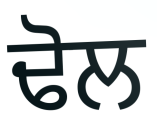
ਢੋਲ